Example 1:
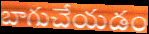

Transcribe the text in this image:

బాగుచేయడం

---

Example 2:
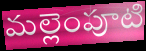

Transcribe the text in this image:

మల్లెంపూటి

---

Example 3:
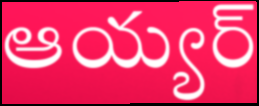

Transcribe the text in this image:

ఆయ్యర్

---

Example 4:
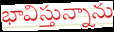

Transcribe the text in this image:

భావిస్తున్నాను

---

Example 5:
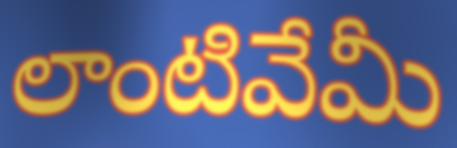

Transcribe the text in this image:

లాంటివేమీ